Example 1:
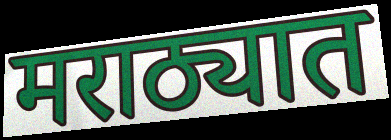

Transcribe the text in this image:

मराठ्यात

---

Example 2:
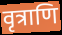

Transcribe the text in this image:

वृत्राणि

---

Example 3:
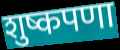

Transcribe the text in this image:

शुष्कपणा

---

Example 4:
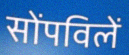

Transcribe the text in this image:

सोंपविलें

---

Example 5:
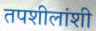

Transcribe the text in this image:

तपशीलांशी